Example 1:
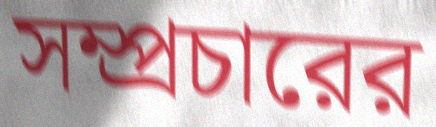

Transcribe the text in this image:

সম্প্রচারের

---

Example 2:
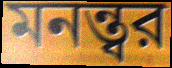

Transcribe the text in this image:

মনন্ত্বর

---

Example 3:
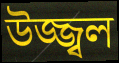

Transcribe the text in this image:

উজ্জ্বল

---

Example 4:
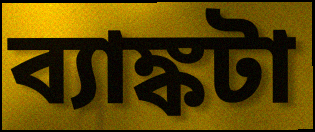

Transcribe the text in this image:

ব্যাঙ্কটা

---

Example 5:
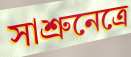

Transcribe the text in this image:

সাশ্রুনেত্রে